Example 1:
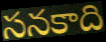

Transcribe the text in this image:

సనకాది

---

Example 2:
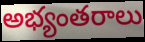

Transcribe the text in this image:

అభ్యంతరాలు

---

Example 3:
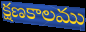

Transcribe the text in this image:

క్షణకాలము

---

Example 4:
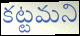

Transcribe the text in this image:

కట్టమని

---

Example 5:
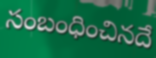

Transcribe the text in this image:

సంబంధించినదే